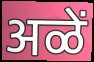
अळें